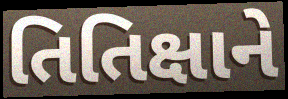
તિતિક્ષાને